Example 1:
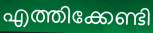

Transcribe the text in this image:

എത്തിക്കേണ്ടി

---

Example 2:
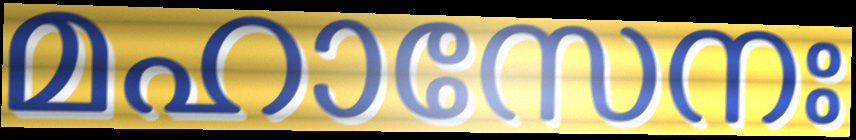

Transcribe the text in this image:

മഹാസേനഃ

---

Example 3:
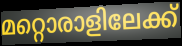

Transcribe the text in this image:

മറ്റൊരാളിലേക്ക്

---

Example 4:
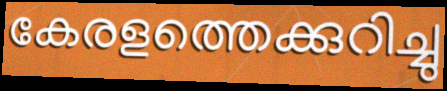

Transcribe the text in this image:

കേരളത്തെക്കുറിച്ചു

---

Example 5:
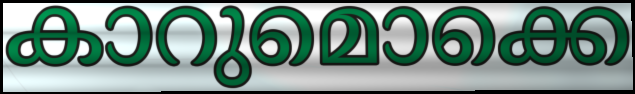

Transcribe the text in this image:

കാറുമൊക്കെ